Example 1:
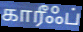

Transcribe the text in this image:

காரீஃப்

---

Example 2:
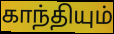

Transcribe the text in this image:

காந்தியும்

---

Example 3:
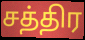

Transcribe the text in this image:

சத்திர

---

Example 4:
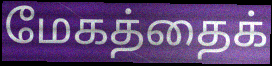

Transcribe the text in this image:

மேகத்தைக்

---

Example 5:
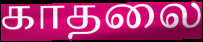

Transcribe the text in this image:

காதலை